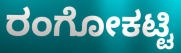
ರಂಗೋಕಟ್ಟಿ